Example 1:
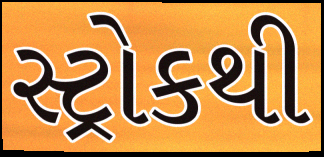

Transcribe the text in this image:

સ્ટ્રોકથી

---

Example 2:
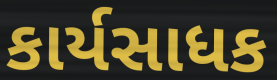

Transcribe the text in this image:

કાર્યસાધક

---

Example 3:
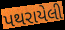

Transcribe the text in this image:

પથરાયેલી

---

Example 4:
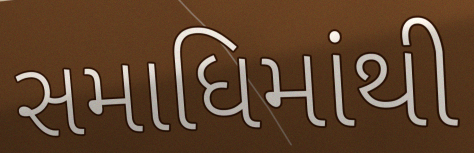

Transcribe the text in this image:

સમાધિમાંથી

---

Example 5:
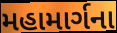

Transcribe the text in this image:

મહામાર્ગના